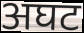
अघट